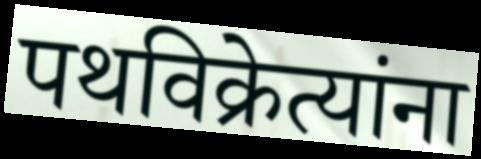
पथविक्रेत्यांना